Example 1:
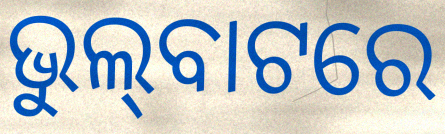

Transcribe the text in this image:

ଭୁଲ୍‌ବାଟରେ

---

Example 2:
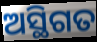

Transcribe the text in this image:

ଅସ୍ଥିଗତ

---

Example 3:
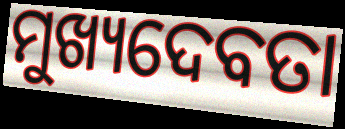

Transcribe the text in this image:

ମୁଖ୍ୟଦେବତା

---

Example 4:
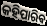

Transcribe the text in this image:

କହିପାରିଵ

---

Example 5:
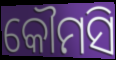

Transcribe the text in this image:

କୌମସି